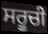
ਸਰੂਚੀ